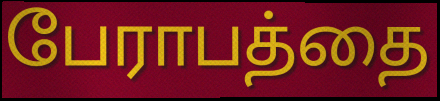
பேராபத்தை